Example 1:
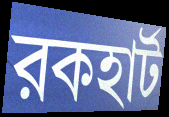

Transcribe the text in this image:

রকহার্ট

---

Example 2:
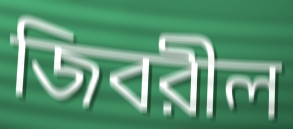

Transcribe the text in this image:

জিবরীল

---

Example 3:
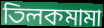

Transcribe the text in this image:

তিলকমামা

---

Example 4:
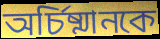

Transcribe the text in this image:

অর্চিষ্মানকে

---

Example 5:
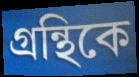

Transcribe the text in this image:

গ্রন্থিকে